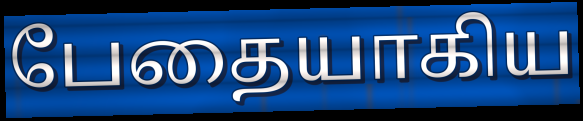
பேதையாகிய